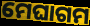
ମେଘାଗମ